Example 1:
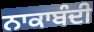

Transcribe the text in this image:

ਨਾਕਾਬੰਦੀ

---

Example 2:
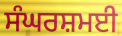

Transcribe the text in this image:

ਸੰਘਰਸ਼ਮਈ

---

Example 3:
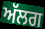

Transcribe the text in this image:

ਅੱਲਗ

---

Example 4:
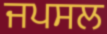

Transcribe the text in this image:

ਜਪਸਲ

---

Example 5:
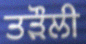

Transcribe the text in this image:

ਤੜੌਲੀ